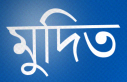
মুদিত